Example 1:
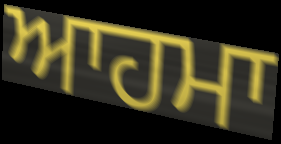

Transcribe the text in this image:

ਆਹਮਾ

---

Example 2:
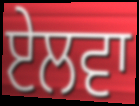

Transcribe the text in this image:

ਏਲਵਾ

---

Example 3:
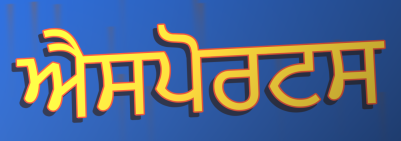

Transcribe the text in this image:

ਐਸਪੋਰਟਸ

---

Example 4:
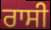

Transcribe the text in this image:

ਰਾਸੀ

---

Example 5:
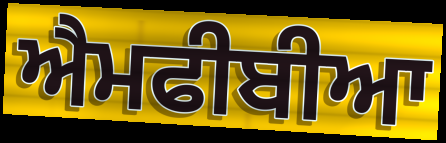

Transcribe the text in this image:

ਐਮਫੀਬੀਆ